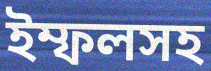
ইম্ফলসহ